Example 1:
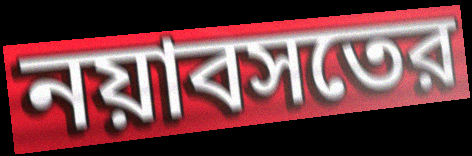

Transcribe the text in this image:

নয়াবসতের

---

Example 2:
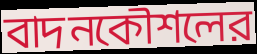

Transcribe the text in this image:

বাদনকৌশলের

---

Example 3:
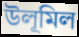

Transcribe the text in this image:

উলূমিল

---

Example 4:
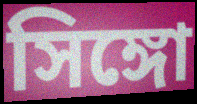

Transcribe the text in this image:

সিঙ্গো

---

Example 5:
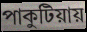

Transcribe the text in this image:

পাকুটিয়ায়